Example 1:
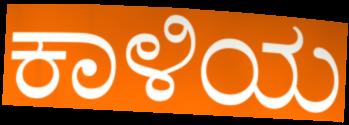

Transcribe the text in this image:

ಕಾಳಿಯ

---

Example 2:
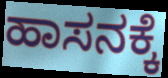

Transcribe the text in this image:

ಹಾಸನಕ್ಕೆ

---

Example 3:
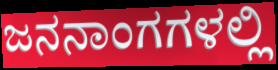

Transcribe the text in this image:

ಜನನಾಂಗಗಳಲ್ಲಿ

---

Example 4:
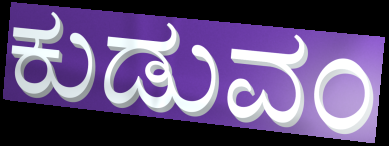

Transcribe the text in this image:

ಕುಡುವಂ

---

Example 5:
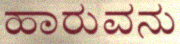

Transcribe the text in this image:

ಹಾರುವನು